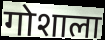
गोशाला